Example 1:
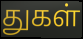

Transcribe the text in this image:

துகள்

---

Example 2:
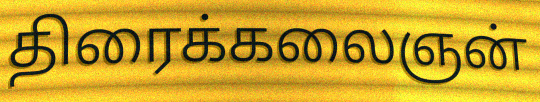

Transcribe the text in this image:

திரைக்கலைஞன்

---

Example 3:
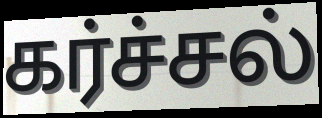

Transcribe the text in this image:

கர்ச்சல்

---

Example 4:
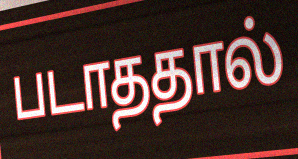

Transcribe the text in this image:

படாததால்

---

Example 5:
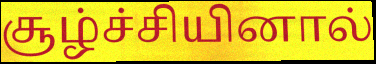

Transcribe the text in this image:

சூழ்ச்சியினால்